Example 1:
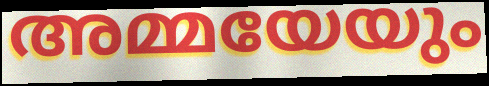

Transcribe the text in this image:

അമ്മയേയും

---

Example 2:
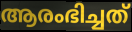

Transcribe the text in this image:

ആരംഭിച്ചത്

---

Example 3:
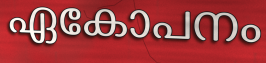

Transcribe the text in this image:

ഏകോപനം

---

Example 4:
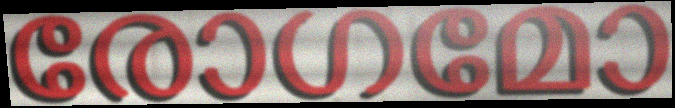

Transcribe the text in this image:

രോഗമോ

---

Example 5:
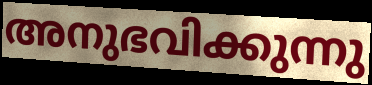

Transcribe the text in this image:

അനുഭവിക്കുന്നു